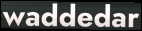
waddedar